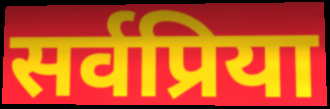
सर्वप्रिया